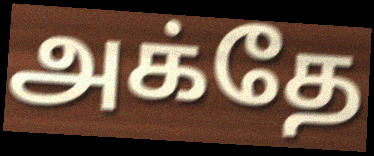
அக்தே